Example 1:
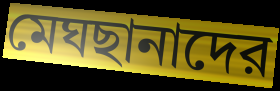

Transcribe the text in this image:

মেঘছানাদের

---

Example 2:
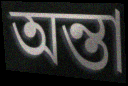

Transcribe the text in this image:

অন্তা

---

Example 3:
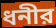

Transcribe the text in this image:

ধনীর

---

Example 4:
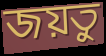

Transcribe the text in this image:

জয়তু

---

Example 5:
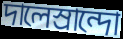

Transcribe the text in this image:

দালেস্রান্দো